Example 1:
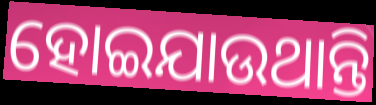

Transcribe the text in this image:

ହୋଇଯାଉଥାନ୍ତି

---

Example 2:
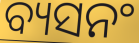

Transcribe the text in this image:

ବ୍ୟସନଂ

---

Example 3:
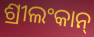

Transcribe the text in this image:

ଶ୍ରୀଲଂକାନ୍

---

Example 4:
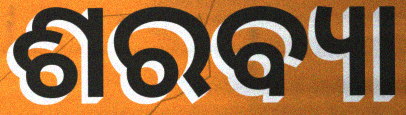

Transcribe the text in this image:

ଶରବ୍ୟା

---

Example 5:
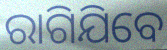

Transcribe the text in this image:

ରାଗିଯିବେ